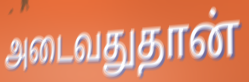
அடைவதுதான்